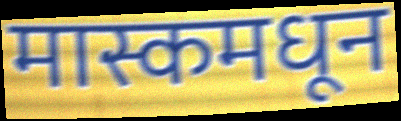
मास्कमधून